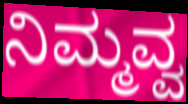
ನಿಮ್ಮವ್ವ